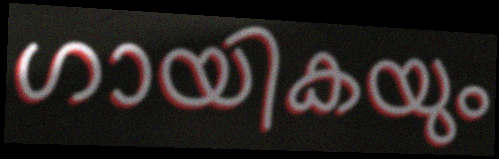
ഗായികയും